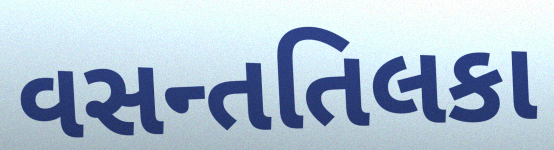
વસન્તતિલકા